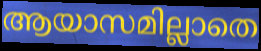
ആയാസമില്ലാതെ